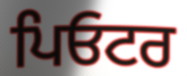
ਪਿਓਟਰ